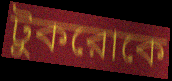
টুকরোকে